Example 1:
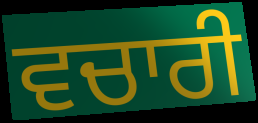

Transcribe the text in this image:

ਵਚਾਰੀ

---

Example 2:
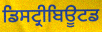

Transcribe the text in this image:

ਡਿਸਟ੍ਰੀਬਿਊਟਡ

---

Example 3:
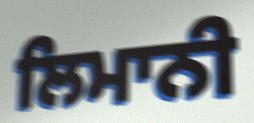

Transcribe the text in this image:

ਲਿਮਾਨੀ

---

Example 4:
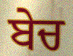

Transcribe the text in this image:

ਬੇਚ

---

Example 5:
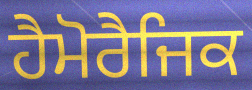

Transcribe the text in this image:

ਹੈਮੋਰੈਜਿਕ